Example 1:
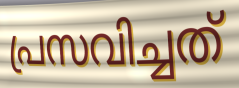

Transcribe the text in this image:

പ്രസവിച്ചത്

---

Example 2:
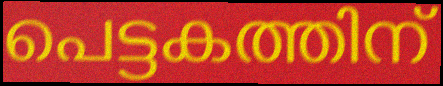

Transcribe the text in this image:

പെട്ടകത്തിന്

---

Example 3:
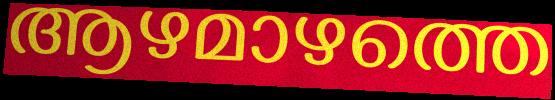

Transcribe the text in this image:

ആഴമാഴത്തെ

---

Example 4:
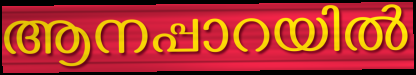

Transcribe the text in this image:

ആനപ്പാറയിൽ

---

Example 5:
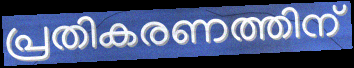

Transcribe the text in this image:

പ്രതികരണത്തിന്